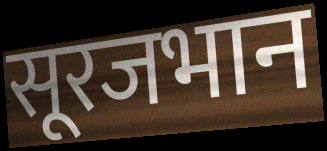
सूरजभान